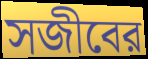
সজীবের